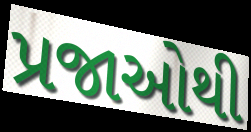
પ્રજાઓથી